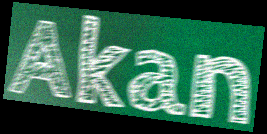
Akan